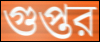
গুপ্তর